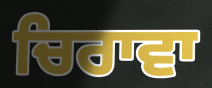
ਚਿਰਾਵਾ